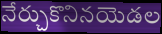
నేర్చుకొనినయెడల